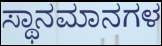
ಸ್ಥಾನಮಾನಗಳ